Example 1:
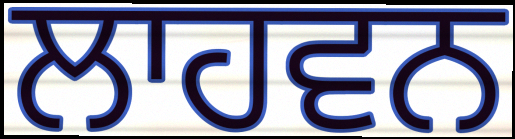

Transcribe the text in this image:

ਲਾਹਵਨ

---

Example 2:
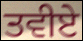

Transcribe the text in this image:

ਤਵੀਏ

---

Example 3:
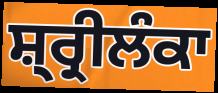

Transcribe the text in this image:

ਸ਼੍ਰ੍ਰੀਲੰਕਾ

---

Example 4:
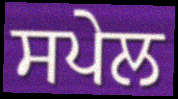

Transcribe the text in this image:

ਸਪੇਲ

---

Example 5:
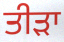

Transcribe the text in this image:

ਤੀੜਾ